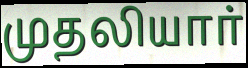
முதலியார்